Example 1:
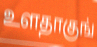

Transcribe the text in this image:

உளதாகுங்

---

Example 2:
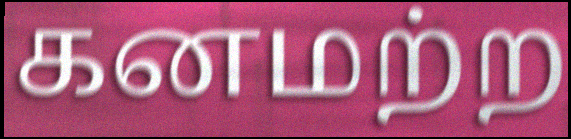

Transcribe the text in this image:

கனமற்ற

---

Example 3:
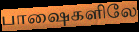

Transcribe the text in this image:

பாஷைகளிலே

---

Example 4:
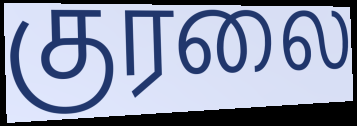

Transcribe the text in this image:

குரலை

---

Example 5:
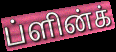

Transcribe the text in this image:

ப்ளின்க்